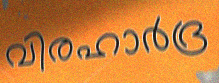
വിരഹാർദ്ര